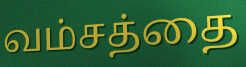
வம்சத்தை